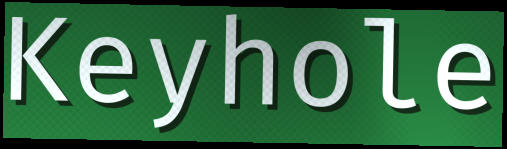
Keyhole